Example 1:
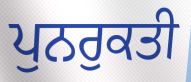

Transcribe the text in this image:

ਪੁਨਰੁਕਤੀ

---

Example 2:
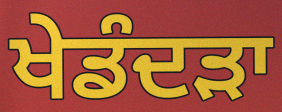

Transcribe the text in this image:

ਖੇਡੰਦੜਾ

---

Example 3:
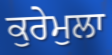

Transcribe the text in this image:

ਕੁਰੇਮੁਲਾ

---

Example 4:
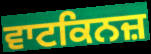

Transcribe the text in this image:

ਵਾਟਕਿਨਜ਼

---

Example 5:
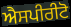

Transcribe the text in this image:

ਐਸਪੀਰੀਟੋ